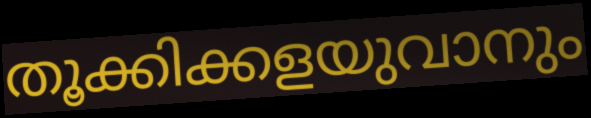
തൂക്കിക്കളയുവാനും